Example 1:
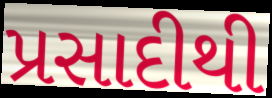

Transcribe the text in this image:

પ્રસાદીથી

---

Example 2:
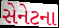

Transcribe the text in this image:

સેનેટના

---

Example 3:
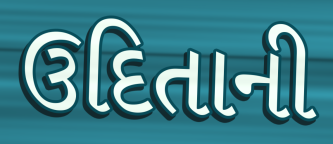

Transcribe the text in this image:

ઉદિતાની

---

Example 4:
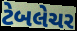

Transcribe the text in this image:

ટેબલેચર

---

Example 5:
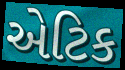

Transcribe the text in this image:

એટિક